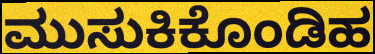
ಮುಸುಕಿಕೊಂಡಿಹ